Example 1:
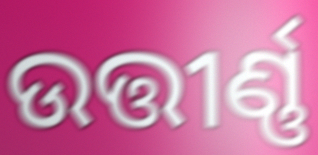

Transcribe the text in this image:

ଉତ୍ତୀର୍ଣ୍ଣ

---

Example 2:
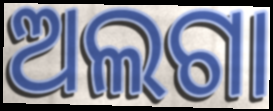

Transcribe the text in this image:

ଅଲଗା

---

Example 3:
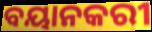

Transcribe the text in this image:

ବୟାନକରୀ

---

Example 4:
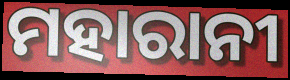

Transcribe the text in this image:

ମହାରାନୀ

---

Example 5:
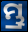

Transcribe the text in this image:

ମ୍ଭ୍ର